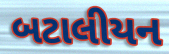
બટાલીયન